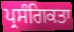
ਪ੍ਰਸੰਗਿਕਤਾ